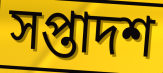
সপ্তাদশ